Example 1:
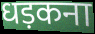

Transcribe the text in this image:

धड़कना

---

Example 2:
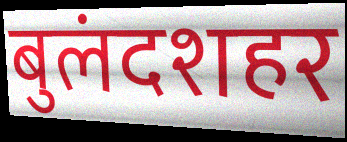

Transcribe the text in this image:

बुलंदशहर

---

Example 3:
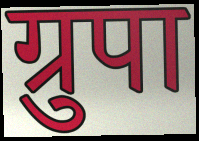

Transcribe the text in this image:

ग्रुपा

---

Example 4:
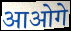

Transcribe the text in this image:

आओगे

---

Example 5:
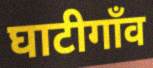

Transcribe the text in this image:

घाटीगाँव